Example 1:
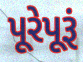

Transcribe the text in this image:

પૂરેપૂરૂં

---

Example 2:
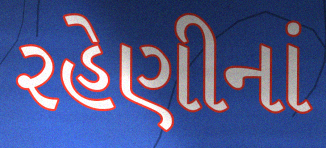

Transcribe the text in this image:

રહેણીનાં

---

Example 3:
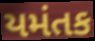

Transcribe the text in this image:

યમંતક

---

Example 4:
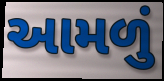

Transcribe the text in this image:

આમળું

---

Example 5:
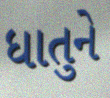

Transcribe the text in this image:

ધાતુને